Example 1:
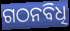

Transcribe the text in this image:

ଗଠନବିଧି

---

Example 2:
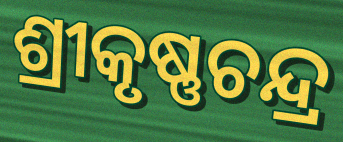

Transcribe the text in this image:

ଶ୍ରୀକୃଷ୍ଣଚନ୍ଦ୍ର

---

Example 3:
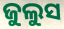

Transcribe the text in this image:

ଜୁଲୁସ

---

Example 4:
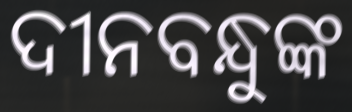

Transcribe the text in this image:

ଦୀନବନ୍ଧୁଙ୍କ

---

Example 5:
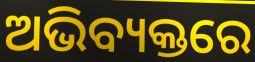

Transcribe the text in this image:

ଅଭିବ୍ୟକ୍ତରେ